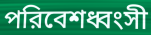
পরিবেশধ্বংসী